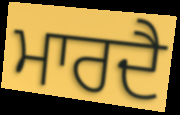
ਮਾਰਦੈ